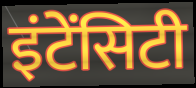
इंटेंसिटी